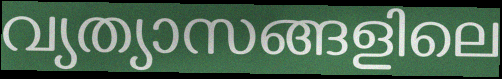
വ്യത്യാസങ്ങളിലെ